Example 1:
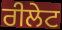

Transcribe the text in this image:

ਰੀਲੇਟ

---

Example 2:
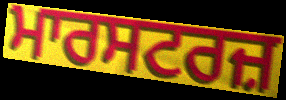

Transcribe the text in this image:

ਮਾਰਸਟਰਜ਼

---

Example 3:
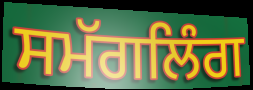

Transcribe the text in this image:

ਸਮੱਗਲਿੰਗ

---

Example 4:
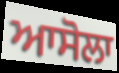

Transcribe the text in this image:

ਆਸੋਲਾ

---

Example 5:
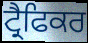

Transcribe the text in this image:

ਟ੍ਰੈਫਿਕਰ